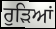
ਰੁੜਿਆਂ